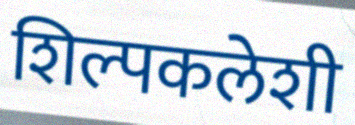
शिल्पकलेशी